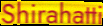
Shirahatti